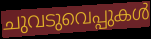
ചുവടുവെപ്പുകൾ